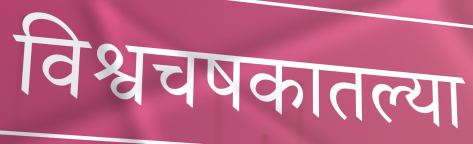
विश्वचषकातल्या